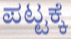
ಪಟ್ಟಕ್ಕೆ